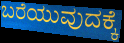
ಬರೆಯುವುದಕ್ಕೆ